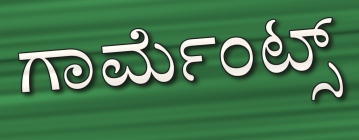
ಗಾರ್ಮೆಂಟ್ಸ್